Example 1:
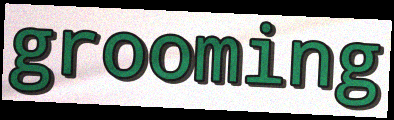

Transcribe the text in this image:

grooming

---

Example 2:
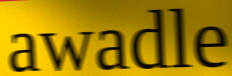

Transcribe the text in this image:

awadle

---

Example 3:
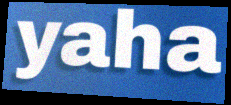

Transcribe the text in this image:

yaha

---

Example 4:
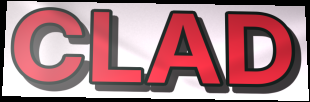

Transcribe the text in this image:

CLAD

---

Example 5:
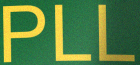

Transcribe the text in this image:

PLL